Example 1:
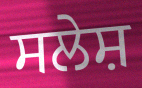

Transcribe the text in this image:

ਸਲੇਸ਼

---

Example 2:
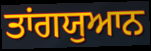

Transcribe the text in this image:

ਤਾਂਗਯੁਆਨ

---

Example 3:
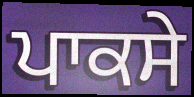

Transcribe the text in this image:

ਪਾਕਸੇ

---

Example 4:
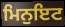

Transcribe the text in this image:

ਮਿਨੁਇਟ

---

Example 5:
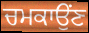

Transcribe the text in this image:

ਚਮਕਾਉਂਣ